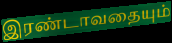
இரண்டாவதையும்